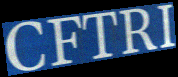
CFTRI